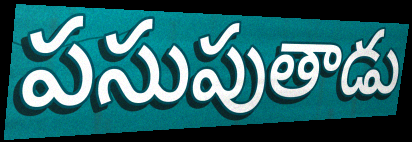
పసుపుతాడు